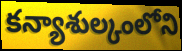
కన్యాశుల్కంలోని